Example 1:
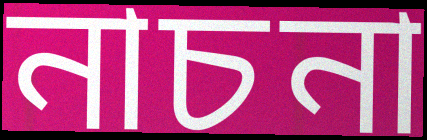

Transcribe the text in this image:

নাচনা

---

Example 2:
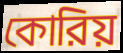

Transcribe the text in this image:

কোরিয়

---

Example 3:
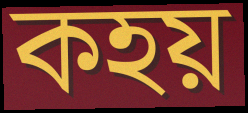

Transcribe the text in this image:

কহয়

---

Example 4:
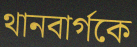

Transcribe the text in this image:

থানবার্গকে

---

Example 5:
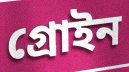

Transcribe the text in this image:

গ্রোইন